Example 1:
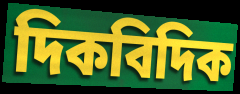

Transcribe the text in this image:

দিকবিদিক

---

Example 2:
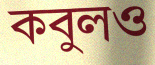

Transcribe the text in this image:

কবুলও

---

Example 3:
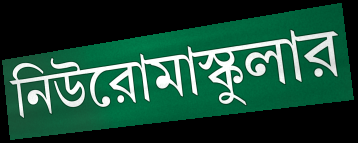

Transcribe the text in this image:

নিউরোমাস্কুলার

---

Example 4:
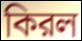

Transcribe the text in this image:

কিরল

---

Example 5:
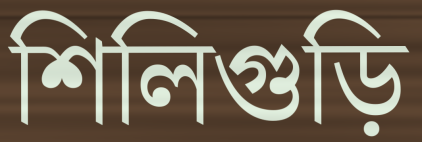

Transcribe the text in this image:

শিলিগুড়ি